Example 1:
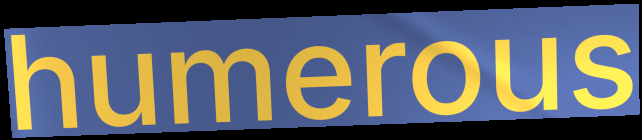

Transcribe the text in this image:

humerous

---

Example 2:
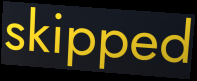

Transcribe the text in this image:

skipped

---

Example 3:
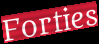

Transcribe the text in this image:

Forties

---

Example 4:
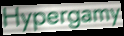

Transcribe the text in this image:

Hypergamy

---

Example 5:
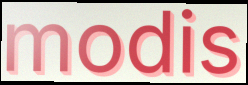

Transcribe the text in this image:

modis